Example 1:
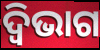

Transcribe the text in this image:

ଦ୍ୱିଭାଗ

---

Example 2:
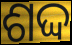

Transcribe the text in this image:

ଶଦ୍ଦ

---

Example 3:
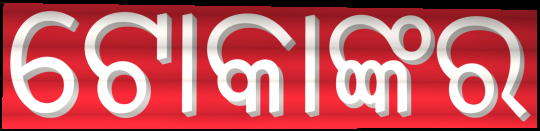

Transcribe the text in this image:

ଟୋକାଙ୍କର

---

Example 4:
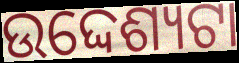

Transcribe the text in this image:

ଉଦ୍ଦେଶ୍ୟଟା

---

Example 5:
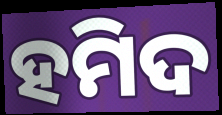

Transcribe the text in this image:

ହମିଦ